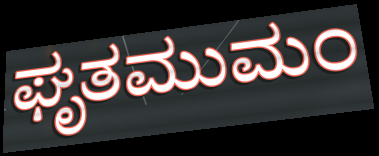
ಘೃತಮುಮಂ